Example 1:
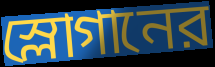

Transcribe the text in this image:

স্লোগানের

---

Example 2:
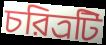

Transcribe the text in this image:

চরিত্রটি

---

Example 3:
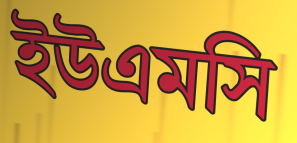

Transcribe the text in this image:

ইউএমসি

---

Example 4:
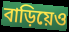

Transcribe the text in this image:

বাড়িয়েও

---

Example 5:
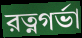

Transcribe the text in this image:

রত্নগর্ভা